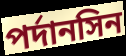
পর্দানসিন